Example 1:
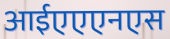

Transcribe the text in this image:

आईएएएनएस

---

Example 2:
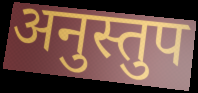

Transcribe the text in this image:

अनुस्तुप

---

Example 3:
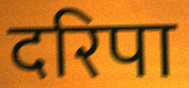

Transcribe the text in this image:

दरिपा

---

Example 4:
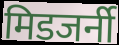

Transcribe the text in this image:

मिडजर्नी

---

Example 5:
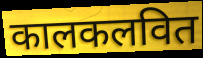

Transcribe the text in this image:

कालकलवित